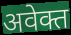
अवेक्त